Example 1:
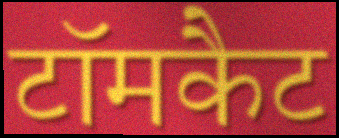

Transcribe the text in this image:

टॉमकैट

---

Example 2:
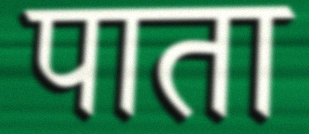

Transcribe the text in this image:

पाता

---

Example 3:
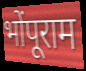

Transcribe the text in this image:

भोंपूराम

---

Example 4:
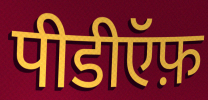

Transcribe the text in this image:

पीडीऍफ़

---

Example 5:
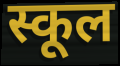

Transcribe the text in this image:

स्कूल